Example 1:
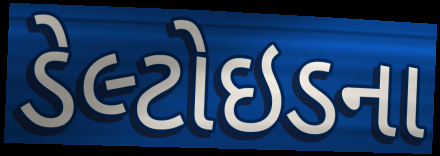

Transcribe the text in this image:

ડેલ્ટોઇડના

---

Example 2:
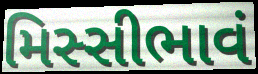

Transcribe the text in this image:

મિસ્સીભાવં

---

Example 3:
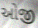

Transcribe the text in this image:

ઓજી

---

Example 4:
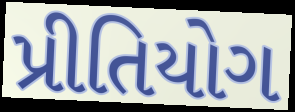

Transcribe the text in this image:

પ્રીતિયોગ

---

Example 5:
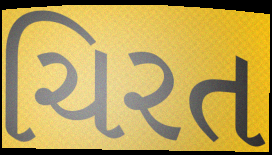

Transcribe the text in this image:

ચિરત